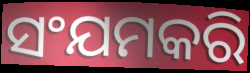
ସଂଯମକରି